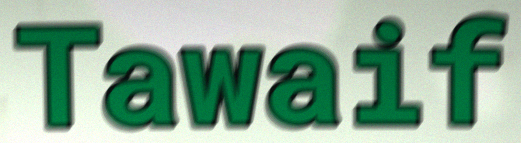
Tawaif